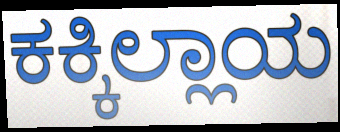
ಕಕ್ಕಿಲ್ಲಾಯ